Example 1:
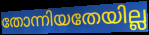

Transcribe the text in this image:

തോന്നിയതേയില്ല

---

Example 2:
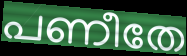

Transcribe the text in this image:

പണീതേ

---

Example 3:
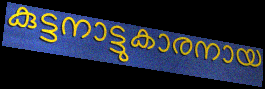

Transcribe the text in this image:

കുട്ടനാട്ടുകാരനായ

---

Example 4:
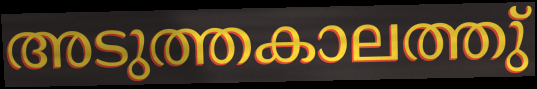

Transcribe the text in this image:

അടുത്തകാലത്തു്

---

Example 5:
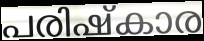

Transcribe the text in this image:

പരിഷ്‌കാര